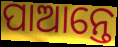
ପାଆନ୍ତେ